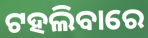
ଟହଲିବାରେ